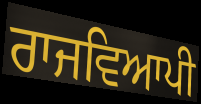
ਰਾਜਵਿਆਪੀ